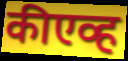
कीएव्ह